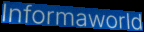
Informaworld